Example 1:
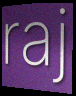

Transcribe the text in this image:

raj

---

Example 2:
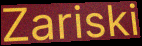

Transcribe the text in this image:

Zariski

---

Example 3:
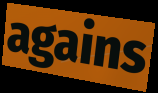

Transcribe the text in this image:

agains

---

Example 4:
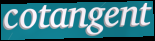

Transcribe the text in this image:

cotangent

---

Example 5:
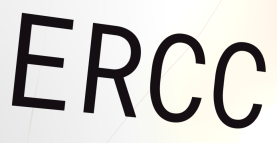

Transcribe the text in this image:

ERCC